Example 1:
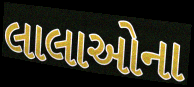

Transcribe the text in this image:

લાલાઓના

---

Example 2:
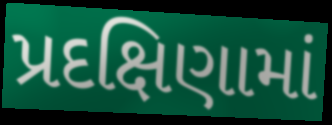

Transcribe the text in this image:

પ્રદક્ષિણામાં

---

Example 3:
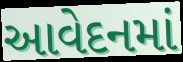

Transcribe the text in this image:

આવેદનમાં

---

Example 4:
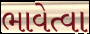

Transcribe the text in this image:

ભાવેત્વા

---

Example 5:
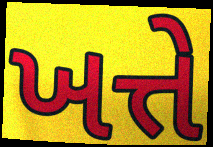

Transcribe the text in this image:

ખત્તે